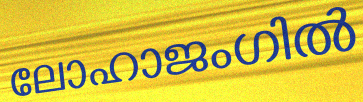
ലോഹാജംഗിൽ